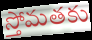
స్తోమతకు